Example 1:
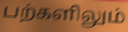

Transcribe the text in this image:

பற்களிலும்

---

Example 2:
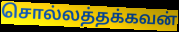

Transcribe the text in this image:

சொல்லத்தக்கவன்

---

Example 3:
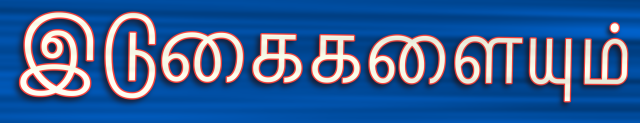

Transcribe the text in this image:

இடுகைகளையும்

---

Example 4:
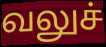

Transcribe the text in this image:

வலுச்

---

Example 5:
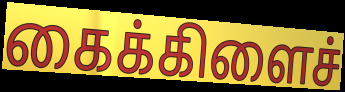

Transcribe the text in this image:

கைக்கிளைச்